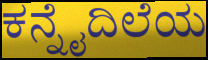
ಕನ್ನೈದಿಲೆಯ